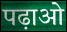
पढ़ाओ